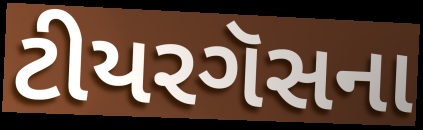
ટીયરગૅસના